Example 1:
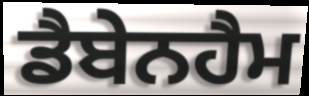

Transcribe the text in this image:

ਡੈਬੇਨਹੈਮ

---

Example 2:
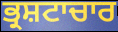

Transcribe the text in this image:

ਭ੍ਰਸ਼ਟਾਚਾਰ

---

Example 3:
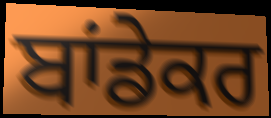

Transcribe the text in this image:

ਬਾਂਡੇਕਰ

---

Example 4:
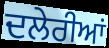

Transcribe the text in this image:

ਦਲੇਰੀਆਂ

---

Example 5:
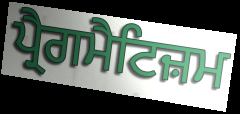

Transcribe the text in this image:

ਪ੍ਰੈਗਮੈਟਿਜ਼ਮ